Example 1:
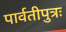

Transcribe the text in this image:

पार्वतीपुत्रः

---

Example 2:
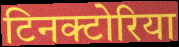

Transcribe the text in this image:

टिनक्टोरिया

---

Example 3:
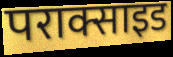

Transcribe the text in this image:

पराक्साइड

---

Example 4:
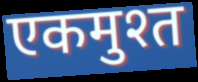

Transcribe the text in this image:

एकमुश्त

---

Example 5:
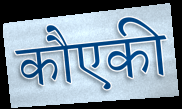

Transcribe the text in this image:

कौएकी